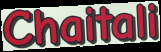
Chaitali